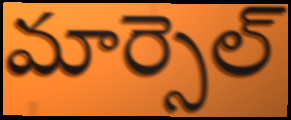
మార్సెల్